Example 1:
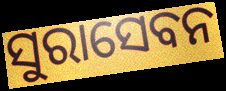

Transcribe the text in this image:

ସୁରାସେବନ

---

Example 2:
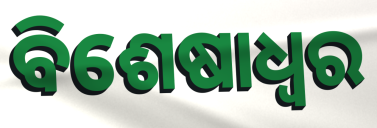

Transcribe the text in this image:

ବିଶେଷାଧ୍ଵର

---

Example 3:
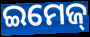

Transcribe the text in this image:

ଇମେଜ୍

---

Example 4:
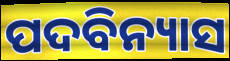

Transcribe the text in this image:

ପଦବିନ୍ୟାସ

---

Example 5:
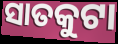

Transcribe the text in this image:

ସାତକୁଟା